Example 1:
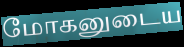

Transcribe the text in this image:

மோகனுடைய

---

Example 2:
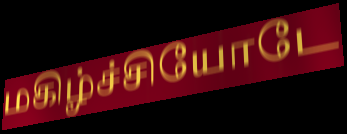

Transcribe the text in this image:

மகிழ்ச்சியோடே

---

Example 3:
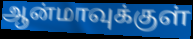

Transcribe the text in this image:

ஆன்மாவுக்குள்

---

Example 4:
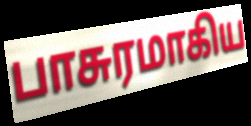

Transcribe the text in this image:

பாசுரமாகிய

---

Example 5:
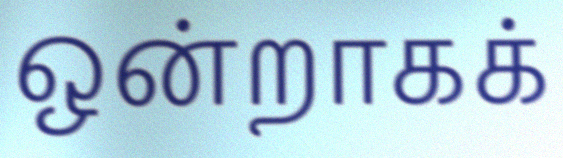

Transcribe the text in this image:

ஒன்றாகக்